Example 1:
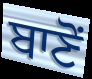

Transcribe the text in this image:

ਬਾਣੋਂ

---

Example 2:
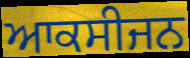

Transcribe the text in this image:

ਆਕਸੀਜਨ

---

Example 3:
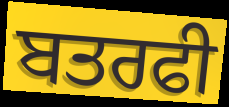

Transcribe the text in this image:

ਬਤਰਫੀ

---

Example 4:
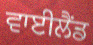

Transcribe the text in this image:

ਵਾਈਲੈਂਡ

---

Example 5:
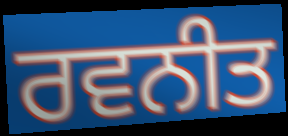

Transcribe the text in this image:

ਰਵਨੀਤ